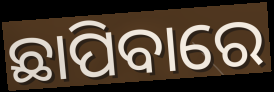
ଛାପିବାରେ